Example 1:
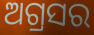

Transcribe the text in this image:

ଅଗ୍ରସର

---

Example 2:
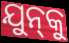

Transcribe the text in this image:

ଯୁନ୍‍କୁ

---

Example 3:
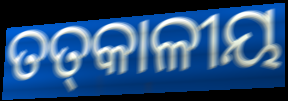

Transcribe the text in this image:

ତତ୍‌କାଳୀୟ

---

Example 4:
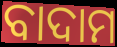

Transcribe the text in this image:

ବାଦାମ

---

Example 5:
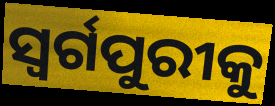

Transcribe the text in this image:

ସ୍ୱର୍ଗପୁରୀକୁ